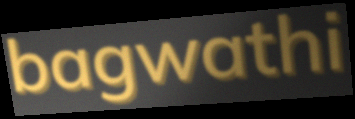
bagwathi